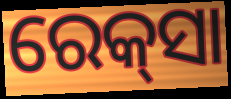
ରେକ୍‍ସା